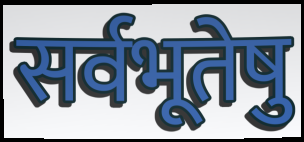
सर्वभूतेषु